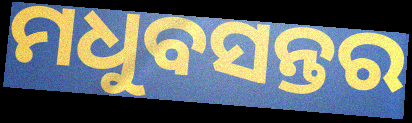
ମଧୁବସନ୍ତର